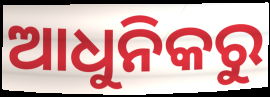
ଆଧୁନିକରୁ